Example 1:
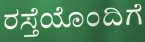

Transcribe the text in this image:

ರಸ್ತೆಯೊಂದಿಗೆ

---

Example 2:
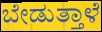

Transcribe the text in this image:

ಬೇಡುತ್ತಾಳೆ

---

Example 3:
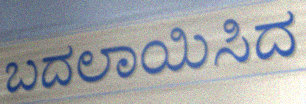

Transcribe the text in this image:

ಬದಲಾಯಿಸಿದ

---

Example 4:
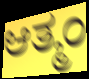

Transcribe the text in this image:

ಆತ್ಮಂ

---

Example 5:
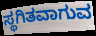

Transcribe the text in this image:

ಸ್ಥಗಿತವಾಗುವ